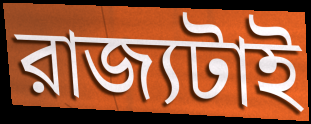
রাজ্যটাই